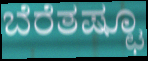
ಬೆರೆತಷ್ಟೂ